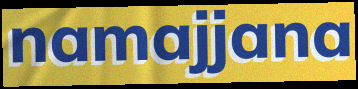
namajjana